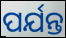
ପର୍ଯନ୍ତ